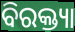
ବିରକ୍ତ୍ୟା